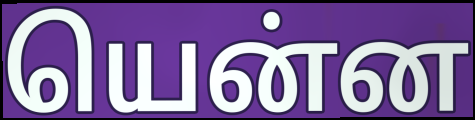
யென்ன